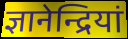
ज्ञानेन्द्रियां